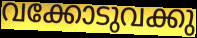
വക്കോടുവക്കു